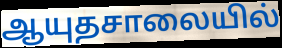
ஆயுதசாலையில்